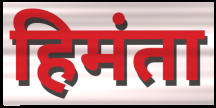
हिमंता